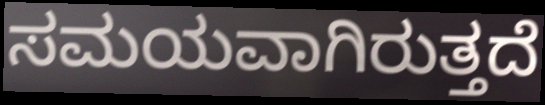
ಸಮಯವಾಗಿರುತ್ತದೆ